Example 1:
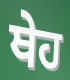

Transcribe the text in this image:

ਥੇਹ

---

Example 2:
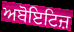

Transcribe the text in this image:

ਅਬੋਇਟਿਜ਼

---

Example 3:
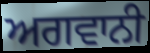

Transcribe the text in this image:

ਅਗਵਾਨੀ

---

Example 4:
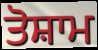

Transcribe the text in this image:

ਤੋਸ਼ਾਮ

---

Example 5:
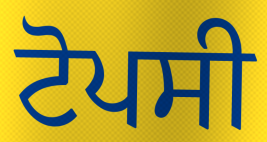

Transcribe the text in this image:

ਟੋਪਸੀ